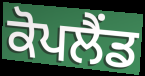
ਕੋਪਲੈਂਡ